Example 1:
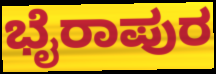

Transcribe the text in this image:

ಭೈರಾಪುರ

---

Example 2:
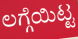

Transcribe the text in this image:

ಲಗ್ಗೆಯಿಟ್ಟ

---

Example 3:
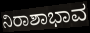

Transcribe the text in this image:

ನಿರಾಶಾಭಾವ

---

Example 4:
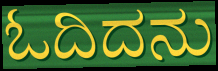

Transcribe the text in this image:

ಓದಿದನು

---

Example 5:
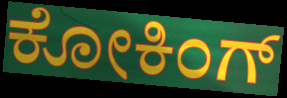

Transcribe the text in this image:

ಕೋಕಿಂಗ್